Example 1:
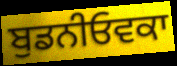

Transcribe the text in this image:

ਬੁਡਨੀਓਵਕਾ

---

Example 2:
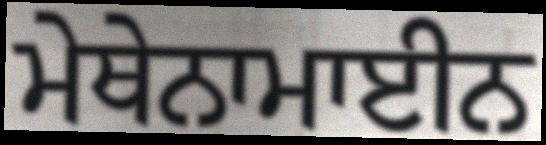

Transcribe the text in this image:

ਮੇਥੇਨਾਮਾਈਨ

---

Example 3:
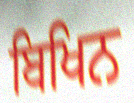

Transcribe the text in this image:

ਬਿਖਿਨ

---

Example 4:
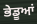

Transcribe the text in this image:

ਭੇਡੂਆਂ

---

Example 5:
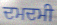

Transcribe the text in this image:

ਦਮਦਮੀ